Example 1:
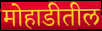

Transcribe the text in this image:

मोहाडीतील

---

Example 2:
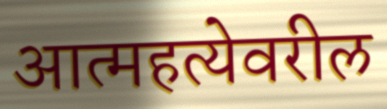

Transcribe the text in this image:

आत्महत्येवरील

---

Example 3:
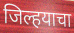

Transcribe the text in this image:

जिल्हयाचा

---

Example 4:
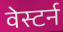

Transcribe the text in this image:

वेस्टर्न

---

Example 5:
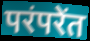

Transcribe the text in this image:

परंपरेंत